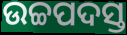
ଉଚ୍ଚପଦସ୍ତ